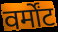
वर्मोंट